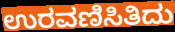
ಉರವಣಿಸಿತಿದು